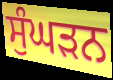
ਸੁੰਘੜਨ